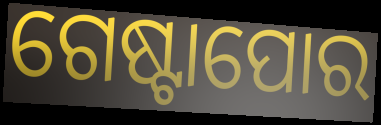
ଗେଷ୍ଟାପୋର